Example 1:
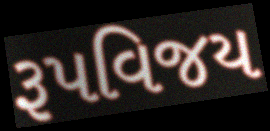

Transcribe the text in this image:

રૂપવિજય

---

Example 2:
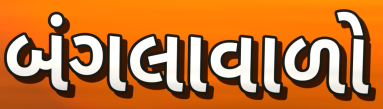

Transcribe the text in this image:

બંગલાવાળો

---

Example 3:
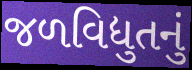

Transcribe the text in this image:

જળવિદ્યુતનું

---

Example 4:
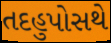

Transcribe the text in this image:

તદહુપોસથે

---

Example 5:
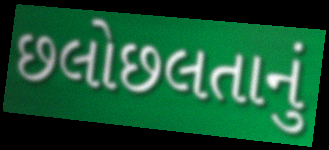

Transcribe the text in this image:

છલોછલતાનું